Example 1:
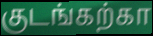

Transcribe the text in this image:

குடங்கற்கா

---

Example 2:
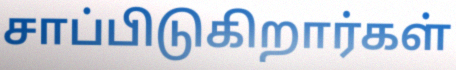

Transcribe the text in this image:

சாப்பிடுகிறார்கள்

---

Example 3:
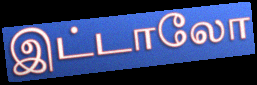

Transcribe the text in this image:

இட்டாலோ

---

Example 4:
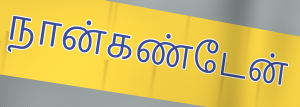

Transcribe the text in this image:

நான்கண்டேன்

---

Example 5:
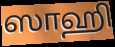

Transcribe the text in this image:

ஸாஹி